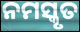
ନମସ୍କୃତ